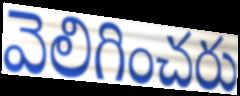
వెలిగించరు